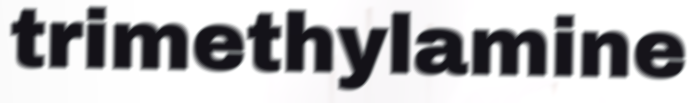
trimethylamine